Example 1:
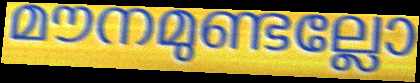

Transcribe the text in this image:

മൗനമുണ്ടല്ലോ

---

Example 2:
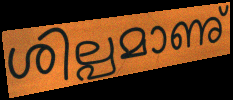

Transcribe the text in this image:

ശില്പമാണു്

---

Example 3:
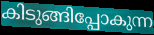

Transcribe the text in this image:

കിടുങ്ങിപ്പോകുന്ന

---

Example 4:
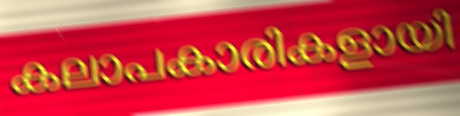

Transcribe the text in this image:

കലാപകാരികളായി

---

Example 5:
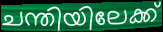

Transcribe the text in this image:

ചന്തിയിലേക്ക്